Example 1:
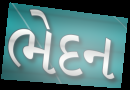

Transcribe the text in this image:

ભેદન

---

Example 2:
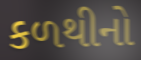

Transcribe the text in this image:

કળથીનો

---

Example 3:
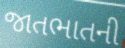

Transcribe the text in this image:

જાતભાતની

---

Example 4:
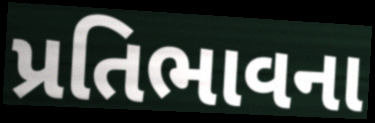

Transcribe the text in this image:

પ્રતિભાવના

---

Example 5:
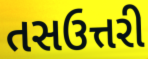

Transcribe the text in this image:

તસઉત્તરી